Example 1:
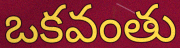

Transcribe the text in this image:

ఒకవంతు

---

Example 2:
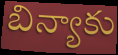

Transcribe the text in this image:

బిన్యాకు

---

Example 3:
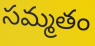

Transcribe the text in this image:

సమ్మతం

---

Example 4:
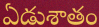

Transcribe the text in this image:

ఏడుశాతం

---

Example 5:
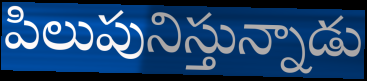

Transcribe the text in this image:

పిలుపునిస్తున్నాడు